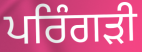
ਪਰਿੰਗੜੀ